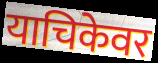
याचिकेवर